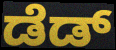
ಡೆಡ್